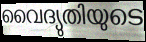
വൈദ്യുതിയുടെ